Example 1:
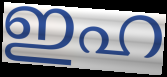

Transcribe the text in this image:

ഇഹ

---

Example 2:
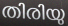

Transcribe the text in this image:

തിരിയു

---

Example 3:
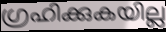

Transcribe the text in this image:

ഗ്രഹിക്കുകയില്ല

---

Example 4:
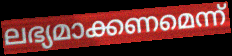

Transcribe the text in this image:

ലഭ്യമാക്കണമെന്ന്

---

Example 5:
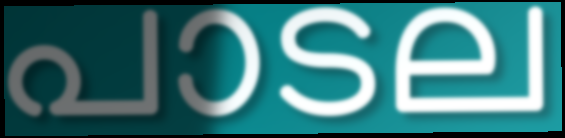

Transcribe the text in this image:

പാടല